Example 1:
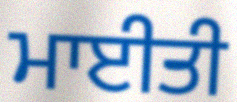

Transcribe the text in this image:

ਮਾਈਤੀ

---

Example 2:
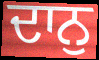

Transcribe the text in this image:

ਦਾਨੁ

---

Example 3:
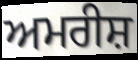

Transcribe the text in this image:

ਅਮਰੀਸ਼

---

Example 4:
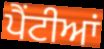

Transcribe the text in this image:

ਪੈਂਟੀਆਂ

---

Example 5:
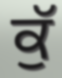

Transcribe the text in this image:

ਕੁੱ